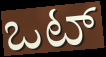
ಒಟ್